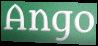
Ango